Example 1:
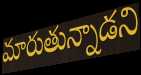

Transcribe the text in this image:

మారుతున్నాడని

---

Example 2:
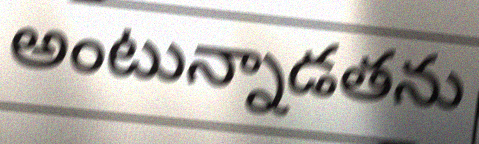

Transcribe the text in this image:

అంటున్నాడతను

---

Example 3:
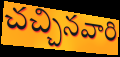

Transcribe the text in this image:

చచ్చినవారి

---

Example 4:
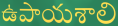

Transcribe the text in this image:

ఉపాయశాలి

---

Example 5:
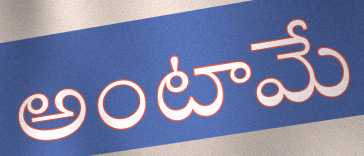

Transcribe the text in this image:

అంటామే